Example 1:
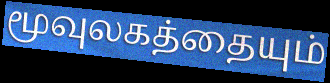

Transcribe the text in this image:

மூவுலகத்தையும்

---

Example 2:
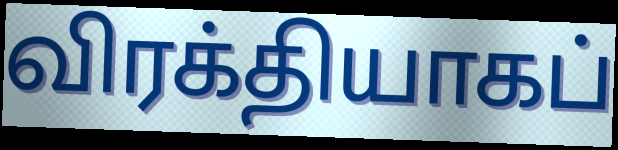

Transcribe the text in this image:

விரக்தியாகப்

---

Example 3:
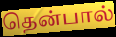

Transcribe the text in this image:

தென்பால்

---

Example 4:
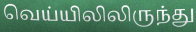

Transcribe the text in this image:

வெய்யிலிலிருந்து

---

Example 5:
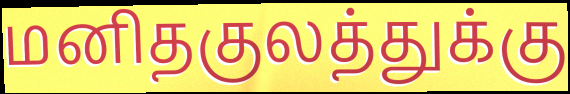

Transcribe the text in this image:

மனிதகுலத்துக்கு